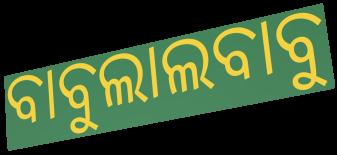
ବାବୁଲାଲବାବୁ